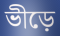
ভীড়ে